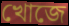
খোজে